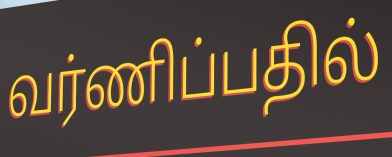
வர்ணிப்பதில்